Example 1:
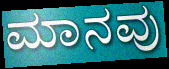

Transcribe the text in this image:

ಮಾನವು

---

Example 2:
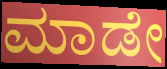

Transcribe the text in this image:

ಮಾಡೇ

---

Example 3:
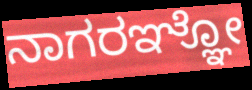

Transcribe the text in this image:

ನಾಗರಞ್ಞೋ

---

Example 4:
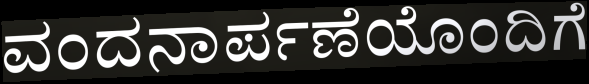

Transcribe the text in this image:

ವಂದನಾರ್ಪಣೆಯೊಂದಿಗೆ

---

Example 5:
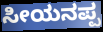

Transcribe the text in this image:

ಸೀಯನಪ್ಪ